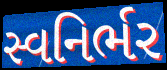
સ્વનિર્ભર